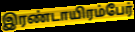
இரண்டாயிரம்பேர்